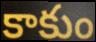
కాకుం